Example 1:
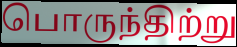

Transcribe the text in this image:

பொருந்திற்று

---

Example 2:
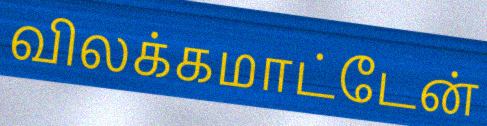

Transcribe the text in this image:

விலக்கமாட்டேன்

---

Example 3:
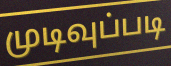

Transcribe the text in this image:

முடிவுப்படி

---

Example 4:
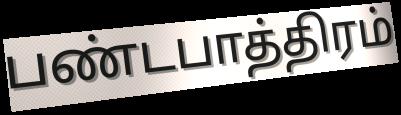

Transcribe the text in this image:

பண்டபாத்திரம்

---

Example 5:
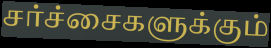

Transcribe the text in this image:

சர்ச்சைகளுக்கும்